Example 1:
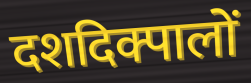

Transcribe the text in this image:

दशदिक्पालों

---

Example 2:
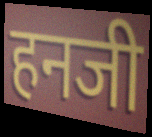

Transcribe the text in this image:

हनजी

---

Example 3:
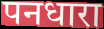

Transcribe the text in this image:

पनधारा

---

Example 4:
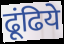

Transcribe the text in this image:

ढूंढिये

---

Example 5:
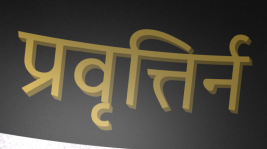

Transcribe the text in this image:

प्रवृत्तिर्न